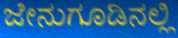
ಜೇನುಗೂಡಿನಲ್ಲಿ